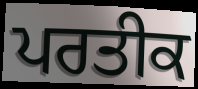
ਪਰਤੀਕ